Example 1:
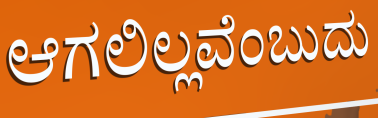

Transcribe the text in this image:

ಆಗಲಿಲ್ಲವೆಂಬುದು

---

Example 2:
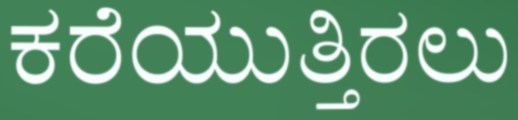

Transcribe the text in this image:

ಕರೆಯುತ್ತಿರಲು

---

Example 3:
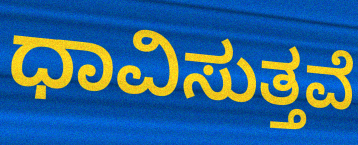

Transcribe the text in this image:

ಧಾವಿಸುತ್ತವೆ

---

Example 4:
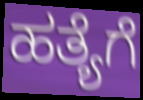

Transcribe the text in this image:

ಹತ್ಯೆಗೆ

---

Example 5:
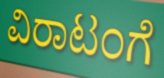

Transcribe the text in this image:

ವಿರಾಟಂಗೆ